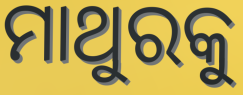
ମାଥୁରକୁ